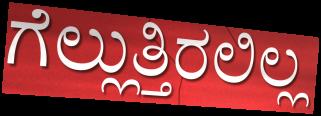
ಗೆಲ್ಲುತ್ತಿರಲಿಲ್ಲ